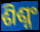
ଶିଶ୍ନଂ